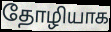
தோழியாக